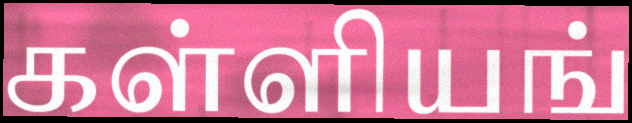
கள்ளியங்